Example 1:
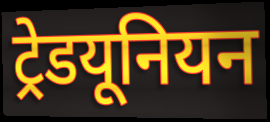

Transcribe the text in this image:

ट्रेडयूनियन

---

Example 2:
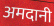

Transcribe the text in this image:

अमदानी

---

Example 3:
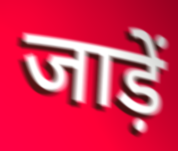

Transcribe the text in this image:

जाड़ें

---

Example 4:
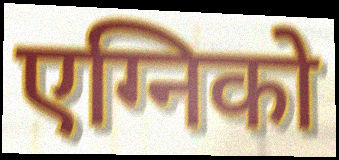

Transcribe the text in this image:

एग्निको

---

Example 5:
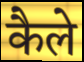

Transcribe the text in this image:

कैले